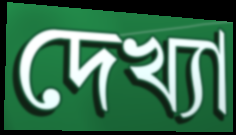
দেখ্যা